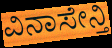
ವಿನಾಸೇನ್ತಿ